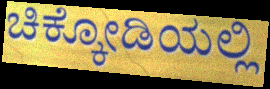
ಚಿಕ್ಕೋಡಿಯಲ್ಲಿ